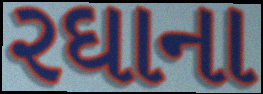
રઘાના